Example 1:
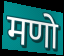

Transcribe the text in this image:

मणो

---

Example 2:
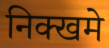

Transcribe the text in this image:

निक्खमे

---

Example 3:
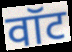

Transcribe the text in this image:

वॉट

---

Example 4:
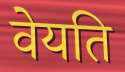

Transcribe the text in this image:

वेयति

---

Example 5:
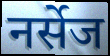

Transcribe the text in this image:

नर्सेज